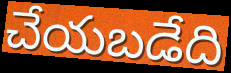
చేయబడేది